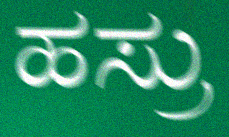
ಹಸ್ರು